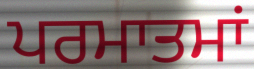
ਪਰਮਾਤਮਾਂ